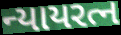
ન્યાયરત્ન